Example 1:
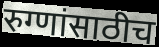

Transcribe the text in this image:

रुग्णांसाठीच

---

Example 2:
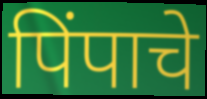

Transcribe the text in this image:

पिंपाचे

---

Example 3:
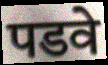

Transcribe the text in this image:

पडवे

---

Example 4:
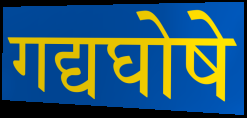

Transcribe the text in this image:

गद्यघोषे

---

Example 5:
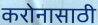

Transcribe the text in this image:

करोनासाठी